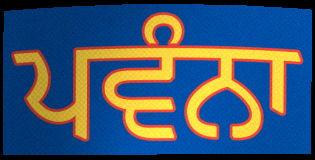
ਪਵੰਨਾ